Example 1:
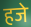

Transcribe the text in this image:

हजे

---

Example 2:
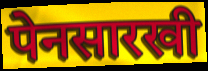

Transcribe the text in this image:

पेनसारखी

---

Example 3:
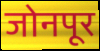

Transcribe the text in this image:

जोनपूर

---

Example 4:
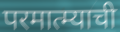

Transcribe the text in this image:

परमात्म्याची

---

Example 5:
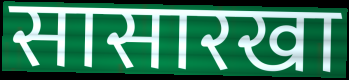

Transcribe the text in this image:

सासारखा